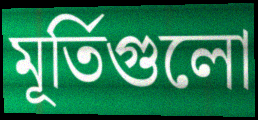
মূর্তিগুলো